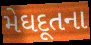
મેઘદૂતના